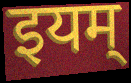
इयम्